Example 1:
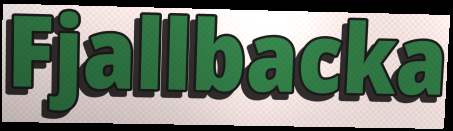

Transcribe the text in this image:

Fjallbacka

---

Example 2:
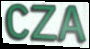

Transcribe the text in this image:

CZA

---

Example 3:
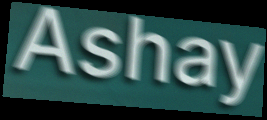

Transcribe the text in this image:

Ashay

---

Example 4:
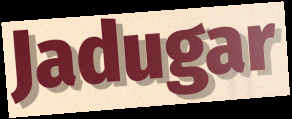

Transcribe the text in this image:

Jadugar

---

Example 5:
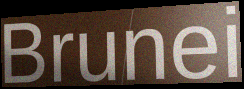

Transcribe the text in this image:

Brunei